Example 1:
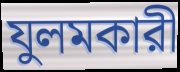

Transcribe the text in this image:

যুলমকারী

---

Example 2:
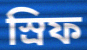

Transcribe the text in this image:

স্রিফ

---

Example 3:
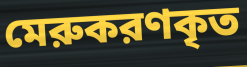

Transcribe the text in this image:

মেরুকরণকৃত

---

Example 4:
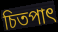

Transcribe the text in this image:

চিতপাৎ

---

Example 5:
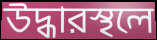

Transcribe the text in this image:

উদ্ধারস্থলে